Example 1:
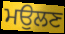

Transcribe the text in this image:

ਮਉਲਣ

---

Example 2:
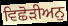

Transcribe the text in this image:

ਵਿਛੋੜੀਅਨੁ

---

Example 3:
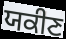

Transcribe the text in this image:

ਯਕੀਣ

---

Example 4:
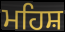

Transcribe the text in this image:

ਮਹਿਸ਼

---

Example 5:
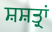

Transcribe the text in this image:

ਸ਼ਸ਼ਤ੍ਰਾਂ